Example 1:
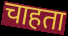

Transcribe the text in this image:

चाहता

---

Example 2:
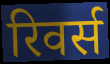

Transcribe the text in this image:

रिवर्स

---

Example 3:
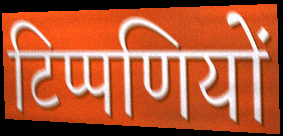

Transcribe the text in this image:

टिप्पणियों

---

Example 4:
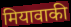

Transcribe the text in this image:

मियावाकी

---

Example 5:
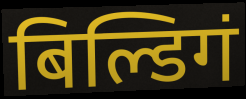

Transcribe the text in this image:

बिल्डिगं